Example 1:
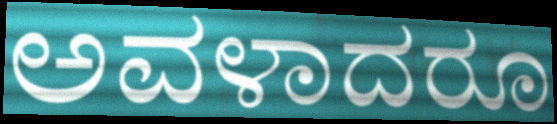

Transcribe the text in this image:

ಅವಳಾದರೂ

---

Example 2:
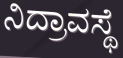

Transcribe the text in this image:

ನಿದ್ರಾವಸ್ಥೆ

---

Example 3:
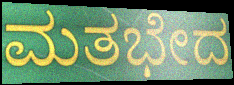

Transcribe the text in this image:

ಮತಭೇದ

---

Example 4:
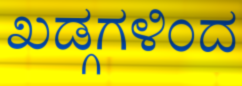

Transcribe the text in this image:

ಖಡ್ಗಗಳಿಂದ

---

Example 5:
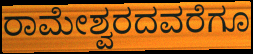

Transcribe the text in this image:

ರಾಮೇಶ್ವರದವರೆಗೂ